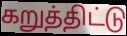
கறுத்திட்டு